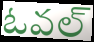
ఓవల్